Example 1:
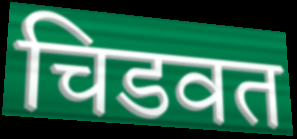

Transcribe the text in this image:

चिडवत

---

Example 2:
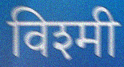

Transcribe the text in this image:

विश्मी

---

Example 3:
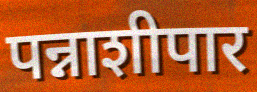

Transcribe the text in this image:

पन्नाशीपार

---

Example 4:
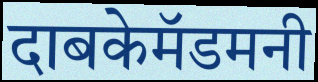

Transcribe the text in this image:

दाबकेमॅडमनी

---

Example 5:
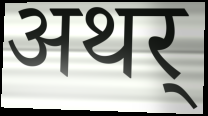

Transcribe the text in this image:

अथर्